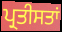
ਪ੍ਰਤੀਸਤਾਂ